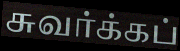
சுவர்க்கப்